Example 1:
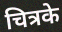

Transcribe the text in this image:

चित्रके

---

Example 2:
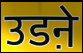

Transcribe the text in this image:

उडऩे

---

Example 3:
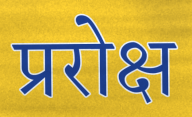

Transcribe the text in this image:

प्ररोक्ष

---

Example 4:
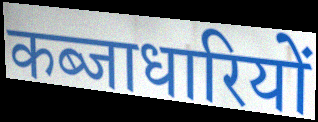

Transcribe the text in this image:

कब्जाधारियों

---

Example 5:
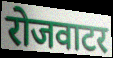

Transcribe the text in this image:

रोजवाटर